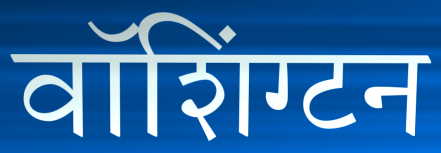
वॉशिंग्टन